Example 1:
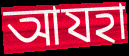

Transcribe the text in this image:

আযহা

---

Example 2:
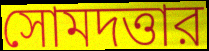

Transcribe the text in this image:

সোমদত্তার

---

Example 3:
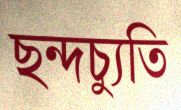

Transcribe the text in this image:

ছন্দচ্যুতি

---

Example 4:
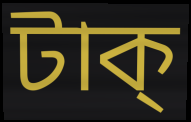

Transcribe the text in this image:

টাক্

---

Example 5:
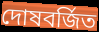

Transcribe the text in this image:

দোষবর্জিত